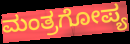
ಮಂತ್ರಗೋಪ್ಯ